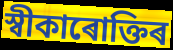
স্বীকাৰোক্তিৰ